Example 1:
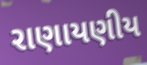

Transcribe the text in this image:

રાણાયણીય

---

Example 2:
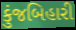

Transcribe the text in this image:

કુંજબિહારી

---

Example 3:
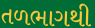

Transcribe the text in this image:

તળભાગથી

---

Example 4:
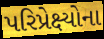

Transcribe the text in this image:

પરિપ્રેક્ષ્યોના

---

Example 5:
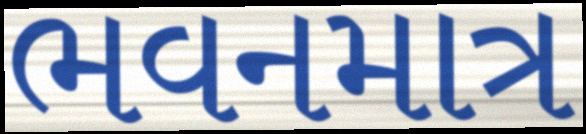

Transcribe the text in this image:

ભવનમાત્ર